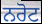
ਨਰੋਟ